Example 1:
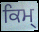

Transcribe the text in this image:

ਕਿਮ੍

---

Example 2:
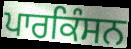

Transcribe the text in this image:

ਪਾਰਕਿੰਸਨ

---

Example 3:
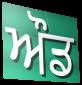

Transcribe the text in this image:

ਔਡ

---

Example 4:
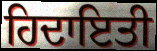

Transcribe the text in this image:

ਹਿਦਾਇਤੀ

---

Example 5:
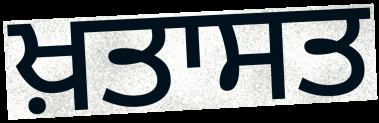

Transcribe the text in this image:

ਖ਼ਤਾਸਤ